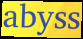
abyss